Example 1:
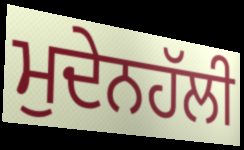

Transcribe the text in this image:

ਮੁਦੇਨਹੱਲੀ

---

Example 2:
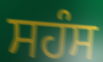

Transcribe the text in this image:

ਸਹੰਸ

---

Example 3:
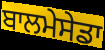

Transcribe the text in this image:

ਬਾਲਮੇਸੇਡਾ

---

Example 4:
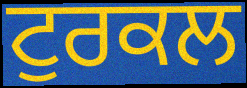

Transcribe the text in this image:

ਟੁਰਕਲ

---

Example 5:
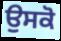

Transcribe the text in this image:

ਉਸਕੋ